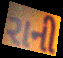
રાની